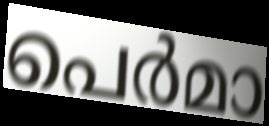
പെർമാ